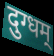
दुग्धम्